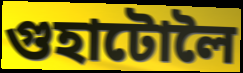
গুহাটোলৈ